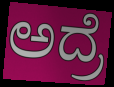
ಅದ್ರೆ